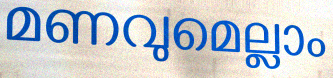
മണവുമെല്ലാം